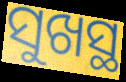
ସୁଖସ୍ଥ